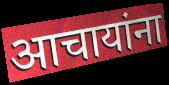
आचायांना